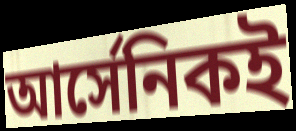
আর্সেনিকই